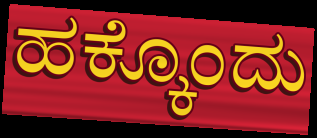
ಹಕ್ಕೊಂದು